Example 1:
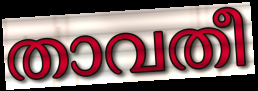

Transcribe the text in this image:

താവതീ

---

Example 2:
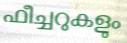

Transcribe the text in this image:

ഫീച്ചറുകളും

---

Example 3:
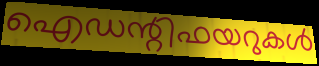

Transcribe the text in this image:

ഐഡന്റിഫയറുകൾ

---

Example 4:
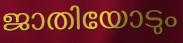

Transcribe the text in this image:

ജാതിയോടും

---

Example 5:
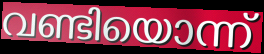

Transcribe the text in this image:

വണ്ടിയൊന്ന്